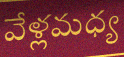
వేళ్లమధ్య